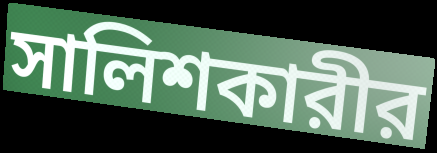
সালিশকারীর